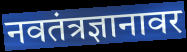
नवतंत्रज्ञानावर